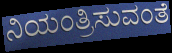
ನಿಯಂತ್ರಿಸುವಂತೆ